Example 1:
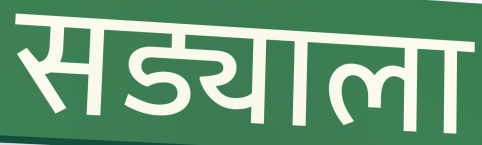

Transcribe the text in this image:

सड्याला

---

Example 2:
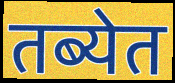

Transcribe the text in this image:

तब्येत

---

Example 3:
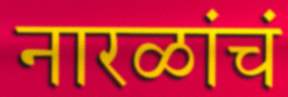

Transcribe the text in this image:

नारळांचं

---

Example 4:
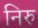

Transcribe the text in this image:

निरु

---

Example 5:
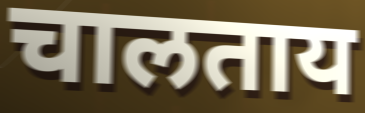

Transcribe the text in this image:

चालताय